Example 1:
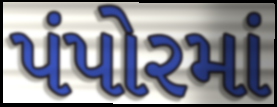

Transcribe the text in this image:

પંપોરમાં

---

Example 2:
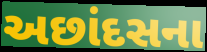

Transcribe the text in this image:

અછાંદસના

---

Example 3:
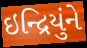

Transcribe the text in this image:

ઇન્દ્રિયુંને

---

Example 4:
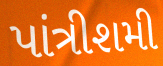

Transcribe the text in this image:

પાંત્રીશમી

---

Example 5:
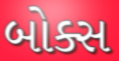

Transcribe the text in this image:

બોક્સ